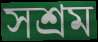
সশ্রম